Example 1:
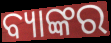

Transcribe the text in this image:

ବ୍ୟାଙ୍କର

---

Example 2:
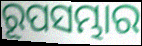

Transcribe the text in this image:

ରୂପସମ୍ଭାର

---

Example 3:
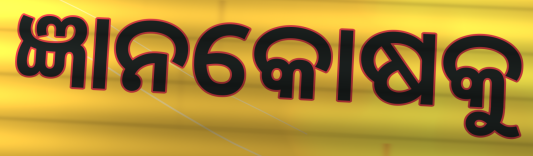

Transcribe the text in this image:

ଜ୍ଞାନକୋଷକୁ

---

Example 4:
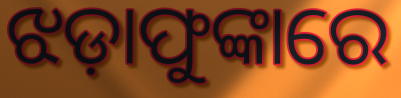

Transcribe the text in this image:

ଝଡ଼ାଫୁଙ୍କାରେ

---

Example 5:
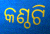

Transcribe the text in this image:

କଣ୍ଠଟି